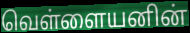
வெள்ளையனின்